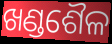
ଖଣ୍ଡଶୈଳ